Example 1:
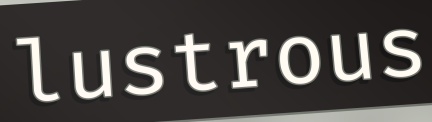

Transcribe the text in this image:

lustrous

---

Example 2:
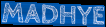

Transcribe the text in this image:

MADHYE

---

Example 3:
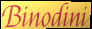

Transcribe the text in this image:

Binodini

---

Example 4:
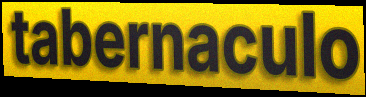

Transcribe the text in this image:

tabernaculo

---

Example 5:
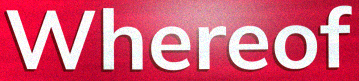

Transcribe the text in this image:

Whereof